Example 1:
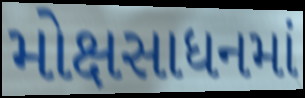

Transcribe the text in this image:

મોક્ષસાધનમાં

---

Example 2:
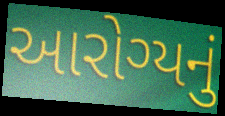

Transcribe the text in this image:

આરોગ્યનું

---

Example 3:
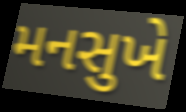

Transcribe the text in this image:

મનસુખે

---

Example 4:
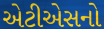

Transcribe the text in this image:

એટીએસનો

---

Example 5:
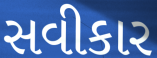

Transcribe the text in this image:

સવીકાર